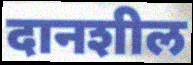
दानशील